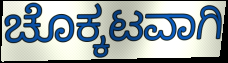
ಚೊಕ್ಕಟವಾಗಿ